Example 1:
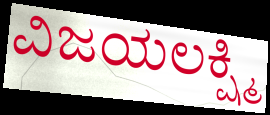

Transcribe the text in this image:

ವಿಜಯಲಕ್ಷ್ಮಿ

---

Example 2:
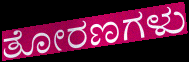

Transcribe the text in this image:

ತೋರಣಗಳು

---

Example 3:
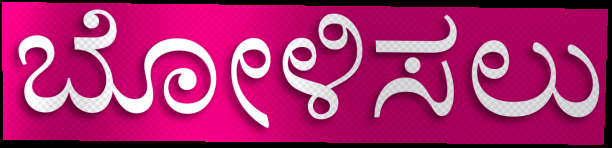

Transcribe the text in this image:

ಬೋಳಿಸಲು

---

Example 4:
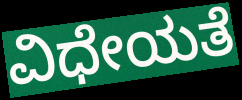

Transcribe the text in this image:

ವಿಧೇಯತೆ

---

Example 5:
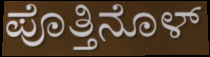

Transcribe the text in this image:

ಪೊತ್ತಿನೊಳ್